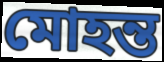
মোহন্ত